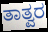
ತಾತ್ವರ